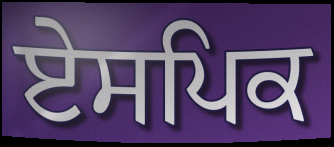
ਏਸਪਿਕ